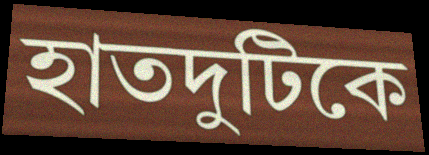
হাতদুটিকে